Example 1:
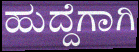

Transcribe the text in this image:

ಹುದ್ದೆಗಾಗಿ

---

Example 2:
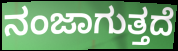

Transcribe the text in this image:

ನಂಜಾಗುತ್ತದೆ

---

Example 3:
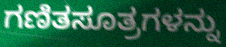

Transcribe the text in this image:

ಗಣಿತಸೂತ್ರಗಳನ್ನು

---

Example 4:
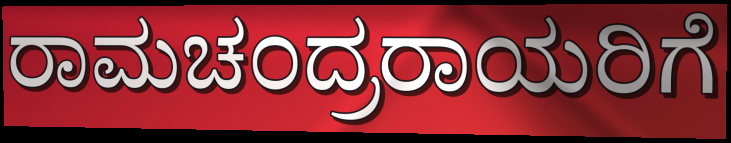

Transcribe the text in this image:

ರಾಮಚಂದ್ರರಾಯರಿಗೆ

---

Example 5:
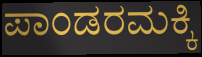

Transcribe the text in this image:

ಪಾಂಡರಮಕ್ಕಿ